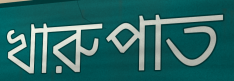
খাৰুপাত